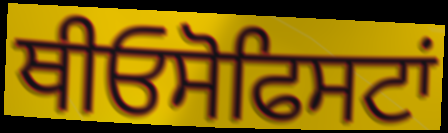
ਥੀਓਸੋਫਿਸਟਾਂ